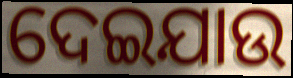
ଦେଇଯାଉ